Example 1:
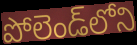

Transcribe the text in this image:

పోలెండ్‌లోని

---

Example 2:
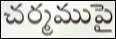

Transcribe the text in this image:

చర్మముపై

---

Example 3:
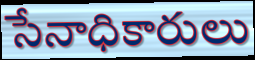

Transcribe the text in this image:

సేనాధికారులు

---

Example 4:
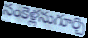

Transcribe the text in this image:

సంకెళ్లనుగూర్చి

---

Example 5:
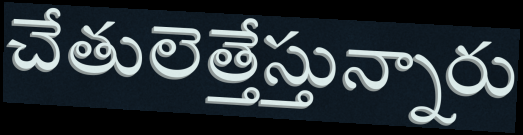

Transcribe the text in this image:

చేతులెత్తేస్తున్నారు